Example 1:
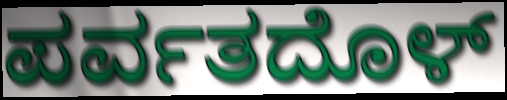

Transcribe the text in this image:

ಪರ್ವತದೊಳ್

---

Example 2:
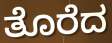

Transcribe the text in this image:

ತೊರೆದ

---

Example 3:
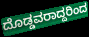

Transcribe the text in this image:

ದೊಡ್ಡವರಾದ್ದರಿಂದ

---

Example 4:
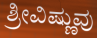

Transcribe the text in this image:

ಶ್ರೀವಿಷ್ಣುವು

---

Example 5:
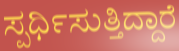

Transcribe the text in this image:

ಸ್ಪರ್ಧಿಸುತ್ತಿದ್ದಾರೆ